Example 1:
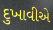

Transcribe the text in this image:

દુખાવીએ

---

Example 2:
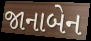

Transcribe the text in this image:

જાનાબેન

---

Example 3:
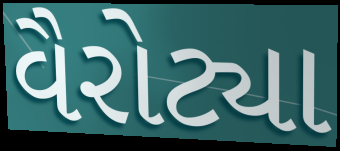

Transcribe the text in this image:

વૈરોટ્યા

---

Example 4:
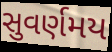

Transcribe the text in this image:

સુવર્ણમય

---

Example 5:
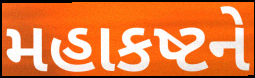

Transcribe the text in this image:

મહાકષ્ટને